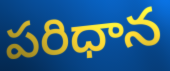
పరిధాన